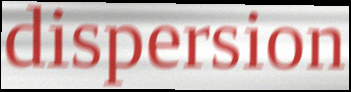
dispersion